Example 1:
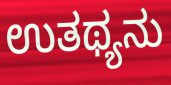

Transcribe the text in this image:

ಉತಥ್ಯನು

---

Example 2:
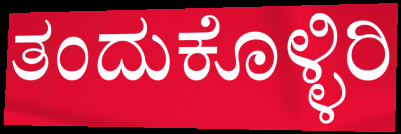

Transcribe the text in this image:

ತಂದುಕೊಳ್ಳಿರಿ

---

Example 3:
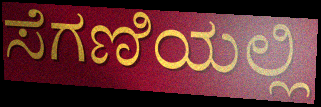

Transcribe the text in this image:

ಸೆಗಣಿಯಲ್ಲಿ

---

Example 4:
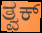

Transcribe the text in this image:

ತ್ವಕ್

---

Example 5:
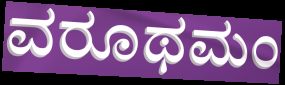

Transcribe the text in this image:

ವರೂಥಮಂ